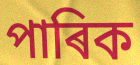
পাৰিক